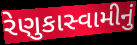
રેણુકાસ્વામીનું